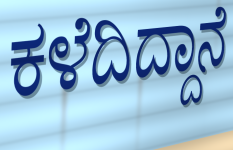
ಕಳೆದಿದ್ದಾನೆ